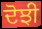
ਦੋਝੀ